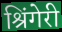
श्रिंगेरी